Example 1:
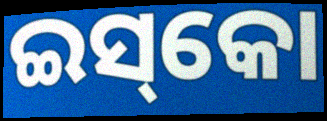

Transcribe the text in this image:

ଇସ୍‌କୋ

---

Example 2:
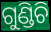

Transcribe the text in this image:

ଗୁଣ୍ଡିଚି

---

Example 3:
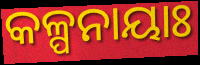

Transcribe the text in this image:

କଳ୍ପନାୟାଃ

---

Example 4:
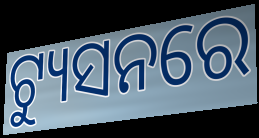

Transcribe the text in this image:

ଟ୍ୟୁସନରେ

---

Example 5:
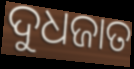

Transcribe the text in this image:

ଦୁଧଜାତ